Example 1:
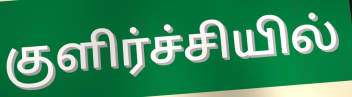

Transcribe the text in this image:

குளிர்ச்சியில்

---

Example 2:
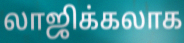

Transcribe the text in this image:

லாஜிக்கலாக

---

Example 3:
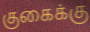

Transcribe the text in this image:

குகைக்கு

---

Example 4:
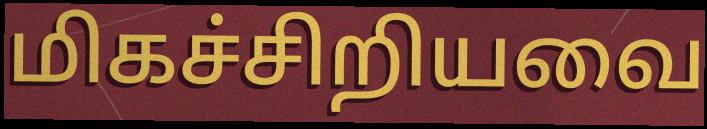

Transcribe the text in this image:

மிகச்சிறியவை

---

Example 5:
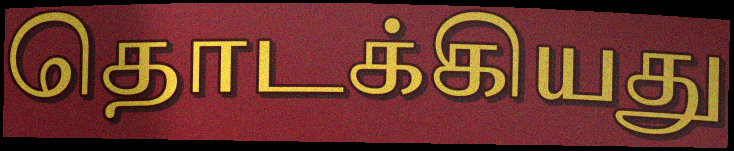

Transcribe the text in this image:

தொடக்கியது